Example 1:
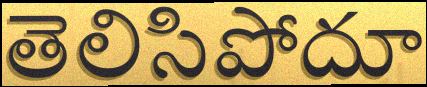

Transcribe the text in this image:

తెలిసిపోదూ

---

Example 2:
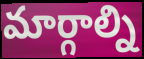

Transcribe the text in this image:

మార్గాల్ని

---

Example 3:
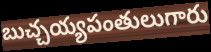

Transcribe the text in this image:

బుచ్చయ్యపంతులుగారు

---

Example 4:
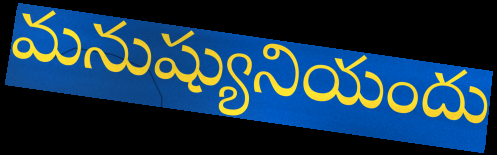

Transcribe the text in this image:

మనుష్యునియందు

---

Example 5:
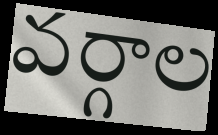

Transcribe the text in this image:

వర్గాల